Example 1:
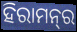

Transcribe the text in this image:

ହିରାମନ୍‍ର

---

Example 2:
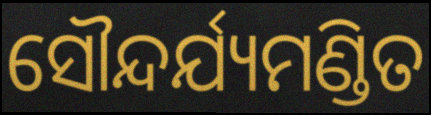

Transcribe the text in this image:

ସୌନ୍ଦର୍ଯ୍ୟମଣ୍ଡିତ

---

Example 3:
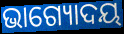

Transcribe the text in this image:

ଭାଗ୍ୟୋଦୟ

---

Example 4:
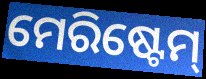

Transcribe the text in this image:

ମେରିଷ୍ଟେମ୍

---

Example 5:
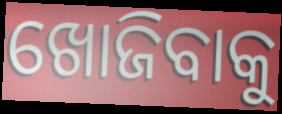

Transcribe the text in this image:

ଖୋଜିବାକୁ